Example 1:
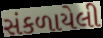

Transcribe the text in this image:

સંકળાયેલી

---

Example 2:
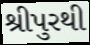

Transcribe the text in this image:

શ્રીપુરથી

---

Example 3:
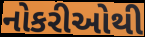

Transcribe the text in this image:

નોકરીઓથી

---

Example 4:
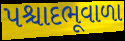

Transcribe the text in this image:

પશ્ચાદભૂવાળા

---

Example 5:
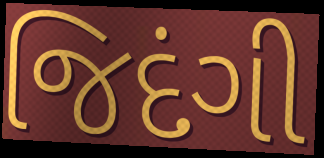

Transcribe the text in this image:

જિદંગી